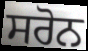
ਸਰੋਨ